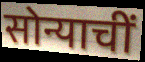
सोन्याचीं